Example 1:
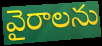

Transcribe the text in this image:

వైరాలను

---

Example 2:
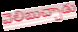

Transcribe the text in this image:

వెలిబుచ్చాడు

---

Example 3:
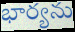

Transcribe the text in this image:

భార్యను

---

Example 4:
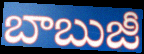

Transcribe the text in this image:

బాబుజీ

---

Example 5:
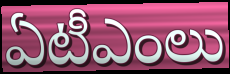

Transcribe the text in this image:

ఏటీఎంలు